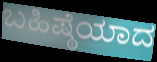
ಬಹಿಷ್ಠೆಯಾದ